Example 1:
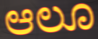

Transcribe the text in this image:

ಆಲೂ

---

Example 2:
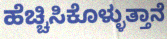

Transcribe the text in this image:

ಹೆಚ್ಚಿಸಿಕೊಳ್ಳುತ್ತಾನೆ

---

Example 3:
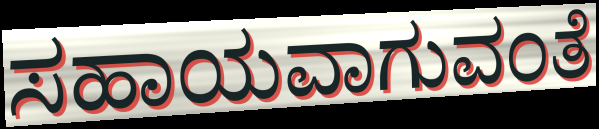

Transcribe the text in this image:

ಸಹಾಯವಾಗುವಂತೆ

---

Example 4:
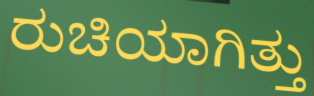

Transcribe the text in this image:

ರುಚಿಯಾಗಿತ್ತು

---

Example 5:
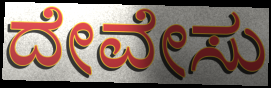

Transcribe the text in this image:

ದೇವೇಸು